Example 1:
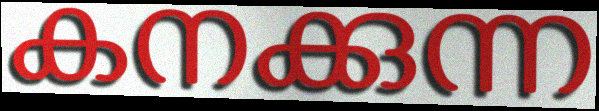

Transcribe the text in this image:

കനക്കുന്ന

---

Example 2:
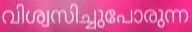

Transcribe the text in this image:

വിശ്വസിച്ചുപോരുന്ന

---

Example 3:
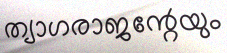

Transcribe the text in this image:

ത്യാഗരാജന്റേയും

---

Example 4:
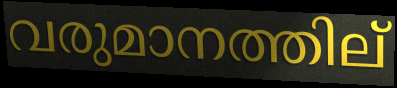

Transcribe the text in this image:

വരുമാനത്തില്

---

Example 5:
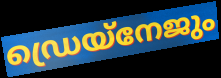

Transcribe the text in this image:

ഡ്രെയ്നേജും